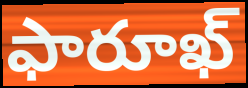
ఫారూఖ్